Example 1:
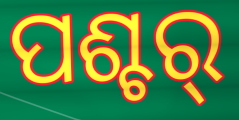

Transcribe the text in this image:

ପଶ୍ଚର୍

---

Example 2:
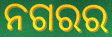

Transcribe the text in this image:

ନଗରର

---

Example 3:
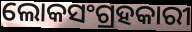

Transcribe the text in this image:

ଲୋକସଂଗ୍ରହକାରୀ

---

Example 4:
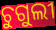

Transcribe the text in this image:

ଚୁଗୁଲୀ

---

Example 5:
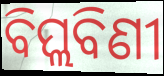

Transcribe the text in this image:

ବିପ୍ଲବିଣୀ